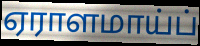
ஏராளமாய்ப்